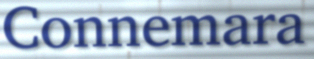
Connemara